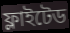
ফ্লাইটেড